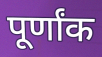
पूर्णांक